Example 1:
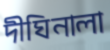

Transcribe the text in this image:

দীঘিনালা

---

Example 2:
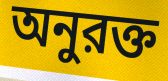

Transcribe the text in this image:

অনুরক্ত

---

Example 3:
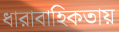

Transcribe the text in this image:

ধারাবাহিকতায়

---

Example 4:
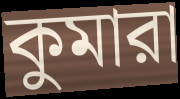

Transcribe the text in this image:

কুমারা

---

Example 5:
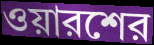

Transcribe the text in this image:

ওয়ারশের